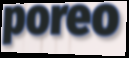
poreo